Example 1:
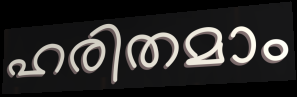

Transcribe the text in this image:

ഹരിതമാം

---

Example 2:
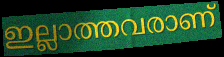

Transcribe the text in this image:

ഇല്ലാത്തവരാണ്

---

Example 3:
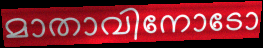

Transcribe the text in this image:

മാതാവിനോടോ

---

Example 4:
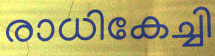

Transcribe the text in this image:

രാധികേച്ചി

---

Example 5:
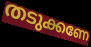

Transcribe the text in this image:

തടുക്കണേ